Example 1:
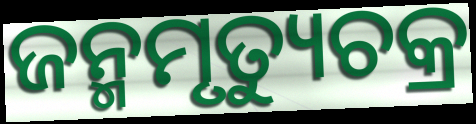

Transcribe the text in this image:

ଜନ୍ମମୃତ୍ୟୁଚକ୍ର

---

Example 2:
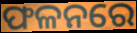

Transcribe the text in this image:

ଫଳନରେ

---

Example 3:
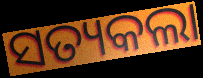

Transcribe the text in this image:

ସତ୍ୟକଲା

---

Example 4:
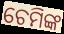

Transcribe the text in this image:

ଚେମିଙ୍କ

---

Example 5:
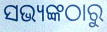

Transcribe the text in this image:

ସଭ୍ୟଙ୍କଠାରୁ